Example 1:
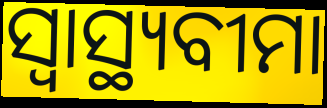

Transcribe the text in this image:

ସ୍ଵାସ୍ଥ୍ୟବୀମା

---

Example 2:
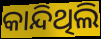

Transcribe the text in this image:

କାନ୍ଦିଥିଲି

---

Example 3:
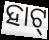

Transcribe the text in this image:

ହାଟ୍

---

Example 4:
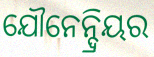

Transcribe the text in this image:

ଯୌନେନ୍ଦ୍ରିୟର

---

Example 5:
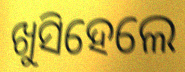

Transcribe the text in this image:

ଖୁସିହେଲେ